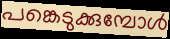
പങ്കെടുക്കുമ്പോൾ